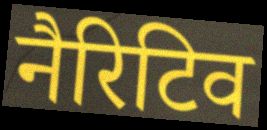
नैरिटिव